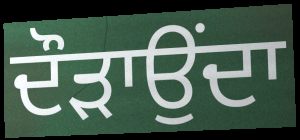
ਦੌੜਾਉਂਦਾ